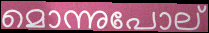
മൊന്നുപോല്